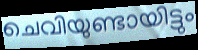
ചെവിയുണ്ടായിട്ടും